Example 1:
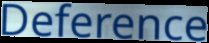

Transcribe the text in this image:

Deference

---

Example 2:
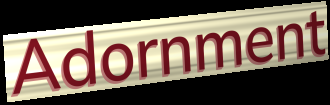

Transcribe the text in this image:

Adornment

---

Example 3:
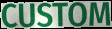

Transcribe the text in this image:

CUSTOM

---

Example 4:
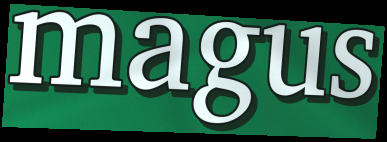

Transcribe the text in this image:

magus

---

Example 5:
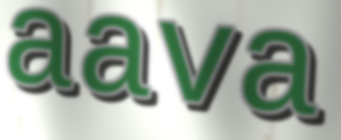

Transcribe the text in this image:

aava